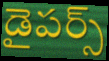
డైపర్స్